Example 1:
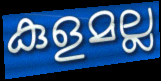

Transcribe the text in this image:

കുളമല്ല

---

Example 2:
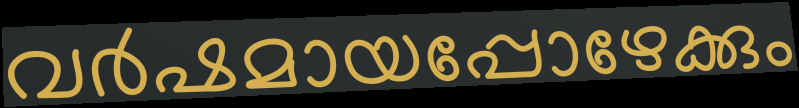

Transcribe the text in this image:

വർഷമായപ്പോഴേക്കും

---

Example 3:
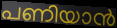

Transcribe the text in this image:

പണിയാൻ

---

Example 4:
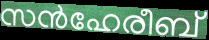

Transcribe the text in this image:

സൻഹേരീബ്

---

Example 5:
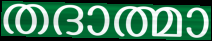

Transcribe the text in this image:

തദാത്മാ